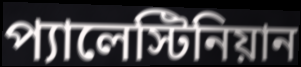
প্যালেস্টিনিয়ান